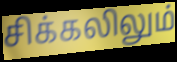
சிக்கலிலும்